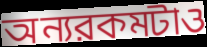
অন্যরকমটাও